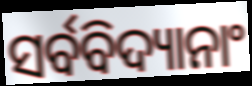
ସର୍ବବିଦ୍ୟାନାଂ